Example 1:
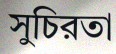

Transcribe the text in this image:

সুচিরতা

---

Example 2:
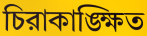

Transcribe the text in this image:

চিরাকাঙ্ক্ষিত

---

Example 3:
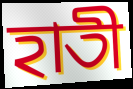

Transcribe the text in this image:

হাতী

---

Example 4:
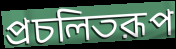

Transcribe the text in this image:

প্রচলিতরূপ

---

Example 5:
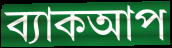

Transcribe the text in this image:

ব্যাকআপ